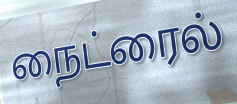
நைட்ரைல்